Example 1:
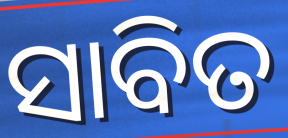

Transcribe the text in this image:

ସାବିତ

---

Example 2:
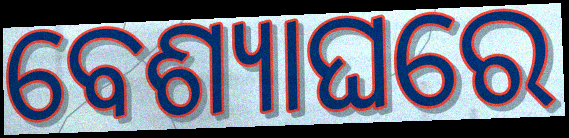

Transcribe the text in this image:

ବେଶ୍ୟାଘରେ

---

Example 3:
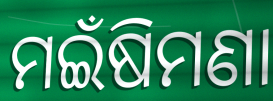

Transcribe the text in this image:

ମଇଁଷିମଣା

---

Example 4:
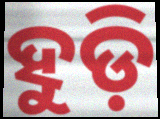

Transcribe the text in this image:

ହୁଡ଼ି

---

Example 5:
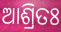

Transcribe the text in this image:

ଆଶ୍ରିତଃ